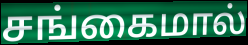
சங்கைமால்